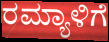
ರಮ್ಯಾಳಿಗೆ